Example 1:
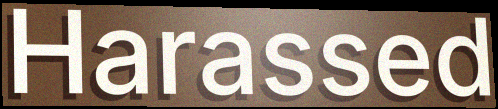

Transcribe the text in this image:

Harassed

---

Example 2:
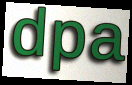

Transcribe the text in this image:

dpa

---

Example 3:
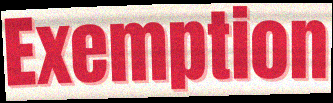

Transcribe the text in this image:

Exemption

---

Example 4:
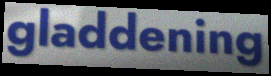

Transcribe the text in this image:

gladdening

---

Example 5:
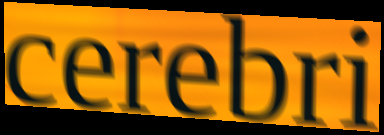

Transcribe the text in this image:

cerebri